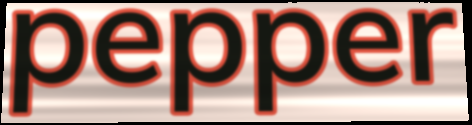
pepper